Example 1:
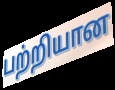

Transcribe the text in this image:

பற்றியான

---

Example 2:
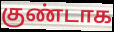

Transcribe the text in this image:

குண்டாக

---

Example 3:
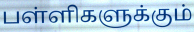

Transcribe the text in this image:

பள்ளிகளுக்கும்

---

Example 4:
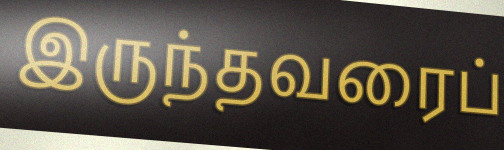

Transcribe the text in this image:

இருந்தவரைப்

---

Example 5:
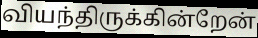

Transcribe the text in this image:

வியந்திருக்கின்றேன்